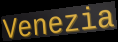
Venezia